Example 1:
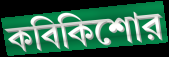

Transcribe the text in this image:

কবিকিশোর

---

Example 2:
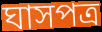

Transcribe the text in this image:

ঘাসপত্র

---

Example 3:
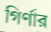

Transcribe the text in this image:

গির্ণার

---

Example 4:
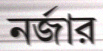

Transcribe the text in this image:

নর্জার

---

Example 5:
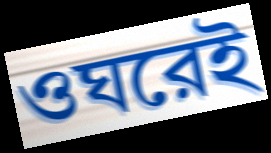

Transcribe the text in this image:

ওঘরেই